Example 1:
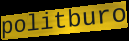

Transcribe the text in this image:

politburo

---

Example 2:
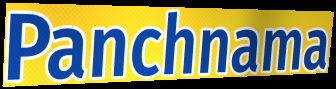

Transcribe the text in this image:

Panchnama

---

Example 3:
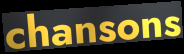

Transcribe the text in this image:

chansons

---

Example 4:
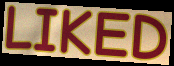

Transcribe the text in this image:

LIKED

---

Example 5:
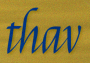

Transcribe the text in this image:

thav